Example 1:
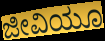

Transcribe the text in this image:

ಜೀವಿಯೂ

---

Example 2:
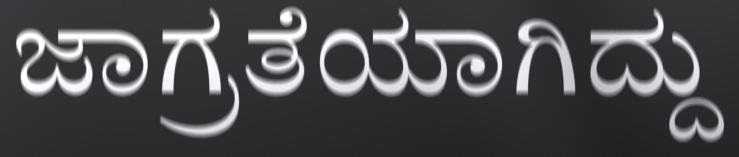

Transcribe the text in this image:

ಜಾಗ್ರತೆಯಾಗಿದ್ದು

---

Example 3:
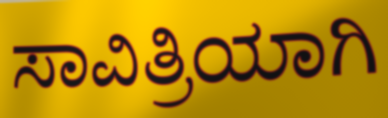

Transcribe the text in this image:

ಸಾವಿತ್ರಿಯಾಗಿ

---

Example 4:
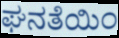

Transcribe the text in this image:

ಘನತೆಯಿಂ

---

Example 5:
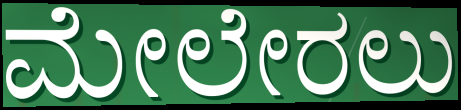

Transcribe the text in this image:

ಮೇಲೇರಲು